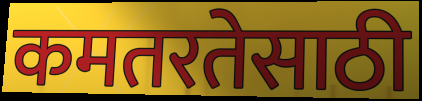
कमतरतेसाठी